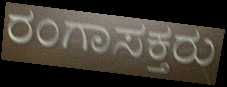
ರಂಗಾಸಕ್ತರು